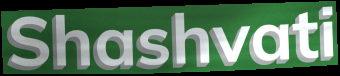
Shashvati